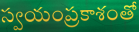
స్వయంప్రకాశంతో